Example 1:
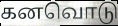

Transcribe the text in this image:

கனவொடு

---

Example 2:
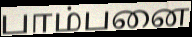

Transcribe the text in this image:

பாம்பனை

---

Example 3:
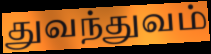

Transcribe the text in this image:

துவந்துவம்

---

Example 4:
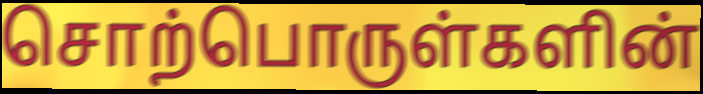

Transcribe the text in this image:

சொற்பொருள்களின்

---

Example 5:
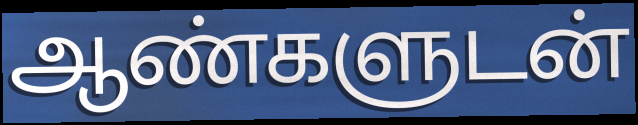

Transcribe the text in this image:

ஆண்களுடன்